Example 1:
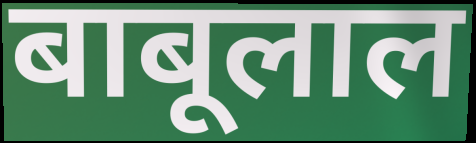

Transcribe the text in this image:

बाबूलाल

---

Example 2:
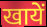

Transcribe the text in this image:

खायें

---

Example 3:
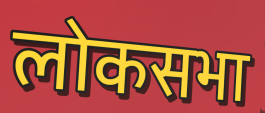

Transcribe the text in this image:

लोकसभा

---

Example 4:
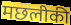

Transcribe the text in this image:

मछलीकी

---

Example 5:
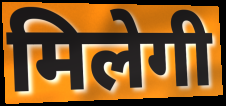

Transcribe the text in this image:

मिलेगी